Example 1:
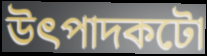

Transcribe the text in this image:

উৎপাদকটো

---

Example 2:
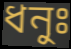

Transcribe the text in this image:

ধনুঃ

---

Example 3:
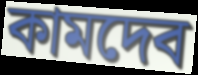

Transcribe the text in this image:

কামদেব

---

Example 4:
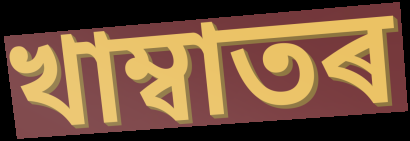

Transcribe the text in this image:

খাম্বাতৰ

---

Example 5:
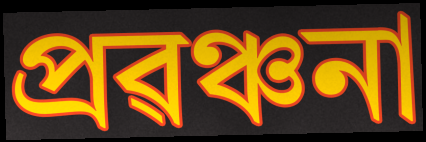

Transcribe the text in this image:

প্ৰৱঞ্চনা